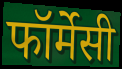
फॉर्मेसी